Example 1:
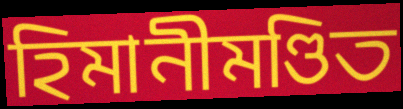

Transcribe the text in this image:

হিমানীমণ্ডিত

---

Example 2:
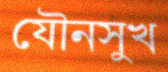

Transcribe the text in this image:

যৌনসুখ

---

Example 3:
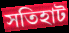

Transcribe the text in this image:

সতিহাট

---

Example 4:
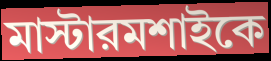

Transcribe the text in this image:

মাস্টারমশাইকে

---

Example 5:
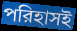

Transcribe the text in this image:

পরিহাসই